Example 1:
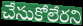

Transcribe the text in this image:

చేసుకోలేరని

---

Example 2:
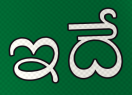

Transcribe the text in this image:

ఇదే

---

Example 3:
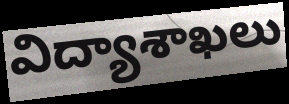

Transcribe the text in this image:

విద్యాశాఖలు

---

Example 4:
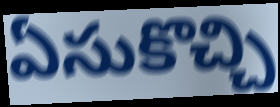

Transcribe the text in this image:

ఏసుకొచ్చి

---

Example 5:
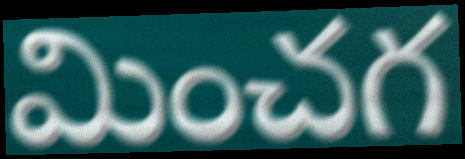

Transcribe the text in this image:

మించగ